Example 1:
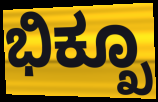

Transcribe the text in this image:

ಭಿಕ್ಖೂ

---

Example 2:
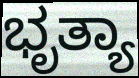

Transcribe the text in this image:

ಭೃತ್ಯಾ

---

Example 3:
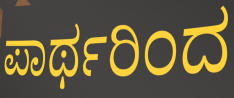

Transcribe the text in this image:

ಪಾರ್ಥರಿಂದ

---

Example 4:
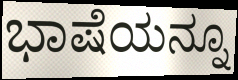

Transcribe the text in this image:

ಭಾಷೆಯನ್ನೂ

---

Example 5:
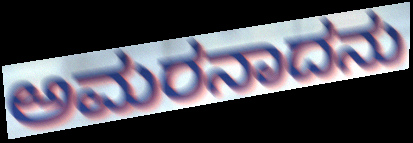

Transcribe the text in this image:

ಅಮರನಾದನು